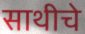
साथीचे